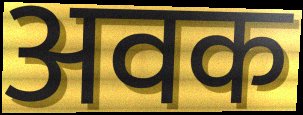
अवक